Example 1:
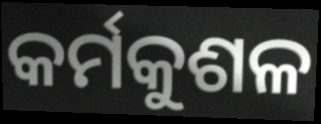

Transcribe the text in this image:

କର୍ମକୁଶଳ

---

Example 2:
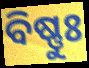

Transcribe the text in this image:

ବିଷ୍ଣୁଃ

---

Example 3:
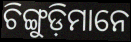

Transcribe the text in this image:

ଚିଙ୍ଗୁଡ଼ିମାନେ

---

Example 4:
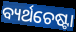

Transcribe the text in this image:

ବ୍ୟର୍ଥଚେଷ୍ଟା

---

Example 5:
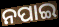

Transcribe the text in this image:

ନପାଇ